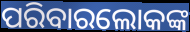
ପରିବାରଲୋକଙ୍କ